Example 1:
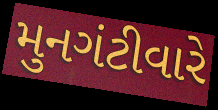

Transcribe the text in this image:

મુનગંટીવારે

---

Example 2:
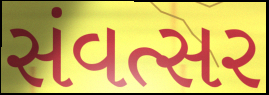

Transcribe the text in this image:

સંવત્સર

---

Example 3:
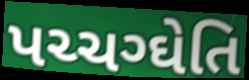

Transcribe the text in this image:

પચ્ચગ્ઘેતિ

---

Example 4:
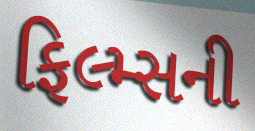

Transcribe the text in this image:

ફિલ્મ્સની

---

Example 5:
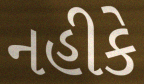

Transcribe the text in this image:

નહીકે